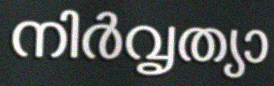
നിർവൃത്യാ